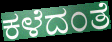
ಕಳೆದಂತೆ